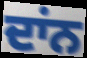
ਦਾਂਨ